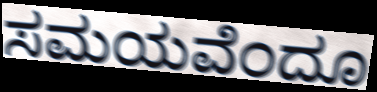
ಸಮಯವೆಂದೂ